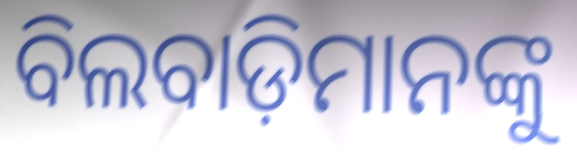
ବିଲବାଡ଼ିମାନଙ୍କୁ